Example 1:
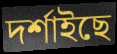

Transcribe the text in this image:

দৰ্শাইছে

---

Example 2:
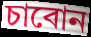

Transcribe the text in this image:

চাবোন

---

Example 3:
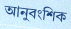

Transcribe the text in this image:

আনুবংশিক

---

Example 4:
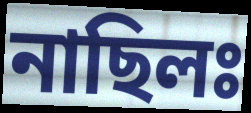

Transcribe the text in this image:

নাছিলঃ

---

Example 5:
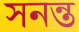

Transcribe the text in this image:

সনন্ত